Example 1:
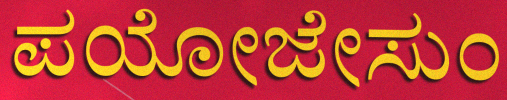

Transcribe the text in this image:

ಪಯೋಜೇಸುಂ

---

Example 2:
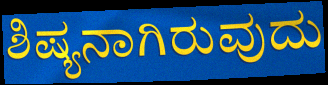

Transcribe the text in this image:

ಶಿಷ್ಯನಾಗಿರುವುದು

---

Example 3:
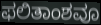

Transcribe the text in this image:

ಫಲಿತಾಂಶವೂ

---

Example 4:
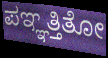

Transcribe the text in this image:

ಪಞ್ಞತ್ತಿತೋ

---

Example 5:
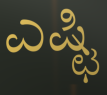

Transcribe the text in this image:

ಎಷ್ಟಿ